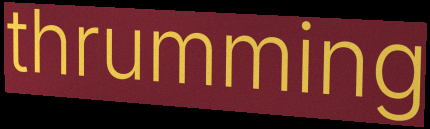
thrumming